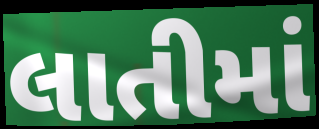
લાતીમાં